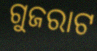
ଗୁଜରାଟ